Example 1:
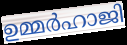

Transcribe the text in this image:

ഉമ്മർഹാജി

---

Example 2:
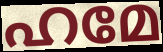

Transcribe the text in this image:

ഹമേ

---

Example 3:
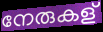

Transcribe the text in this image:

നേരുകള്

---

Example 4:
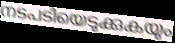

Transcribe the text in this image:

നടപടിയെടുക്കുകയും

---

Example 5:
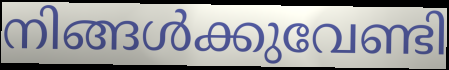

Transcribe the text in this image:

നിങ്ങൾക്കുവേണ്ടി